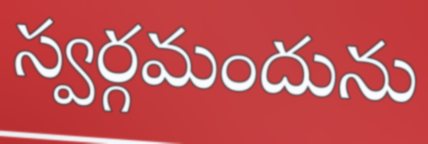
స్వర్గమందును